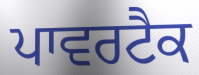
ਪਾਵਰਟੈਕ